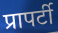
प्रापर्टी